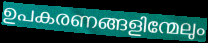
ഉപകരണങ്ങളിന്മേലും